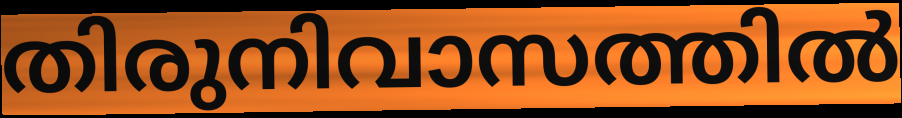
തിരുനിവാസത്തിൽ